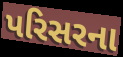
પરિસરના